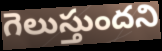
గెలుస్తుందని